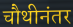
चौथीनंतर